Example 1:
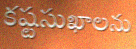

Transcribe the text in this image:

కష్టసుఖాలను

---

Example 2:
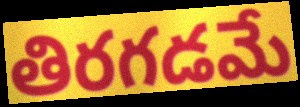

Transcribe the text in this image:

తిరగడమే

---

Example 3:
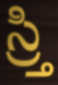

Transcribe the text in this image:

స్ర్తి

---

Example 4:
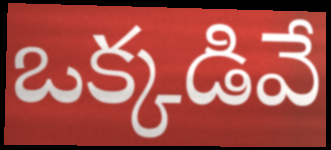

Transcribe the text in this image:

ఒక్కడివే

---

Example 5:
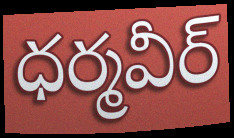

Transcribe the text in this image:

ధర్మవీర్